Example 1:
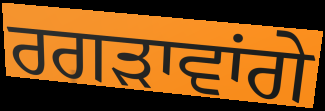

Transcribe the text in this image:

ਰਗੜਾਵਾਂਗੇ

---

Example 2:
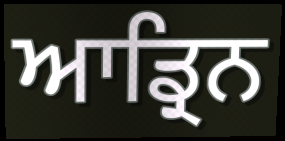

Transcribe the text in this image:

ਆਡ੍ਰਿਨ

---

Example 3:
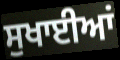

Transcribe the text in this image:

ਸੁਖਾਈਆਂ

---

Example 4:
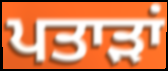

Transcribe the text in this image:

ਪਤਾੜਾਂ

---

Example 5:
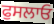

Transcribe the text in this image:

ਫੁਸਲਾਓ